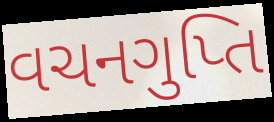
વચનગુપ્તિ